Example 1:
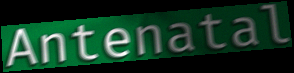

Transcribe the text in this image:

Antenatal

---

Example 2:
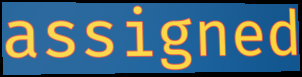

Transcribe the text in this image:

assigned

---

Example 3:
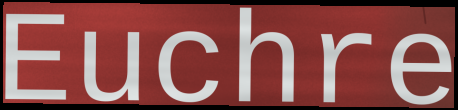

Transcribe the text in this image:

Euchre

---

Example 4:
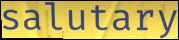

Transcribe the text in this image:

salutary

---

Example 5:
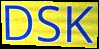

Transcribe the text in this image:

DSK